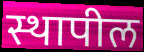
स्थापील